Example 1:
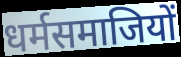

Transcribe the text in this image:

धर्मसमाजियों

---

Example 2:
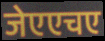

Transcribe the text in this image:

जेएएचए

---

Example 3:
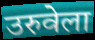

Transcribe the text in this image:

उरुवेला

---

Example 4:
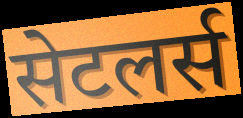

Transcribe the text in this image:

सेटलर्स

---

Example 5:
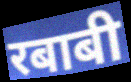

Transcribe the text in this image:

रबाबी